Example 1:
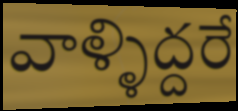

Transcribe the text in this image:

వాళ్ళిద్దరే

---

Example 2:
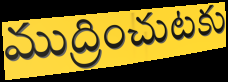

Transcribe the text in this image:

ముద్రించుటకు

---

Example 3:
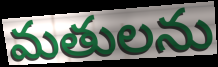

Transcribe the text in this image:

మతులను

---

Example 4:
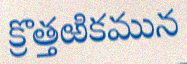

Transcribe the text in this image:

క్రొత్తఱికమున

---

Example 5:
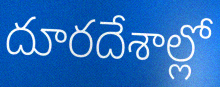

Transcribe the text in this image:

దూరదేశాల్లో